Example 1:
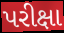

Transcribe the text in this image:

પરીક્ષા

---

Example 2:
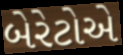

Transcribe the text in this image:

બેરેટોએ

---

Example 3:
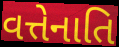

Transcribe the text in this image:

વત્તેનાતિ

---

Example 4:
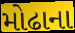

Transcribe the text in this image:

મોઢાના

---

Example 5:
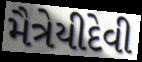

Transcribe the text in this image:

મૈત્રેયીદેવી